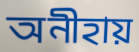
অনীহায়